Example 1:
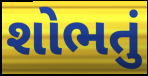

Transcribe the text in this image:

શોભતું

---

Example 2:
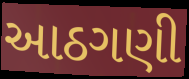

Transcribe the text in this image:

આઠગણી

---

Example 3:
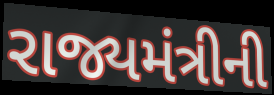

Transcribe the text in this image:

રાજ્યમંત્રીની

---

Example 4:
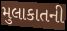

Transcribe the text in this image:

મુલાકાતની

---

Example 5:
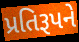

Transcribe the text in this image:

પ્રતિરૂપને